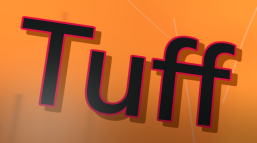
Tuff